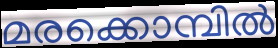
മരക്കൊമ്പിൽ